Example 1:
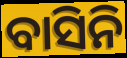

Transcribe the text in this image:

ବାସିନି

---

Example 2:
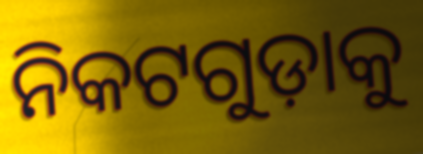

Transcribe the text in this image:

ନିକଟଗୁଡ଼ାକୁ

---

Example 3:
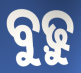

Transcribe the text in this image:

ବୁଢ଼ୁ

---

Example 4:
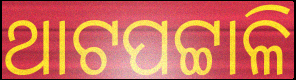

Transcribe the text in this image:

ଥାଟପଟ୍ଟାଳି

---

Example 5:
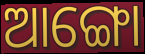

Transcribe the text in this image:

ଆଙ୍ଗୋ